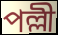
পল্লী